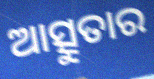
ଆତ୍ସୁତାର